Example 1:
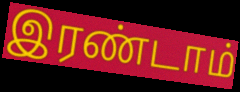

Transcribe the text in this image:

இரண்டாம்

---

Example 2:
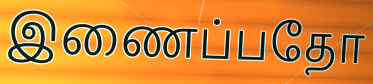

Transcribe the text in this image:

இணைப்பதோ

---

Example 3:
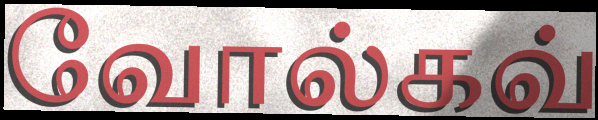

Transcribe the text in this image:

வோல்கவ்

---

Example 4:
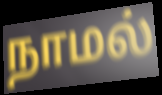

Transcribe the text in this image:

நாமல்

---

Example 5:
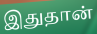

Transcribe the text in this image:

இதுதான்